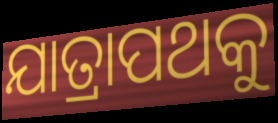
ଯାତ୍ରାପଥକୁ